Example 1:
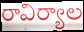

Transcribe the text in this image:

రావిర్యాల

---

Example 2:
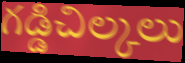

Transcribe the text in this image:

గడ్డిచిల్కలు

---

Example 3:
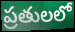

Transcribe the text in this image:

ప్రతులలో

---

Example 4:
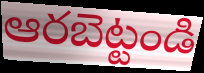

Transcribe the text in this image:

ఆరబెట్టండి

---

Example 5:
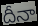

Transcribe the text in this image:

దీనా